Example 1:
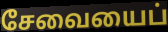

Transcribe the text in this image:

சேவையைப்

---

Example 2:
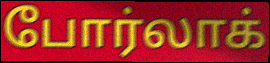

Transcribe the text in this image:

போர்லாக்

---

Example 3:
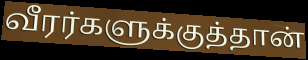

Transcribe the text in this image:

வீரர்களுக்குத்தான்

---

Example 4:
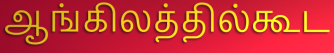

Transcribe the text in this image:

ஆங்கிலத்தில்கூட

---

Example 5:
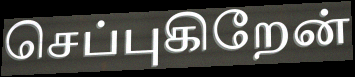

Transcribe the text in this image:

செப்புகிறேன்